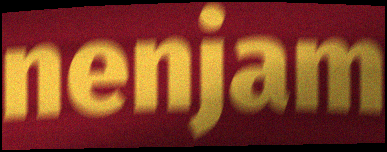
nenjam